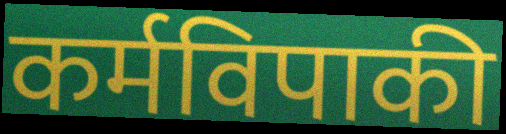
कर्मविपाकी